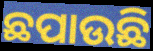
ଛପାଉଛି